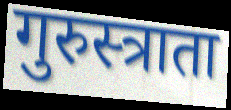
गुरुस्त्राता